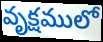
వృక్షములో